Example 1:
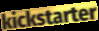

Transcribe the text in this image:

kickstarter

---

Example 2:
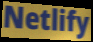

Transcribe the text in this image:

Netlify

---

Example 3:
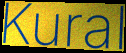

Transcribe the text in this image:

Kural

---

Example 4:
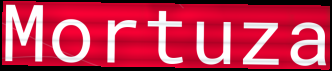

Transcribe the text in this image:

Mortuza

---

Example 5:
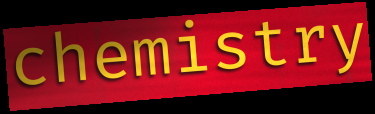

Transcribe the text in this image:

chemistry